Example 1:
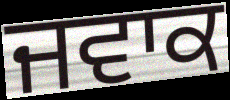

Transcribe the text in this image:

ਜਵਾਕ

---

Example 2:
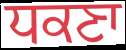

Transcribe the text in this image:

ਧਕਣਾ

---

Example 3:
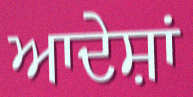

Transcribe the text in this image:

ਆਦੇਸ਼ਾਂ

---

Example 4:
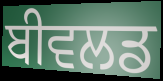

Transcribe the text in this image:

ਬੀਵਲਡ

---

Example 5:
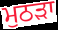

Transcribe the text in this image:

ਮੁਠੜਾ